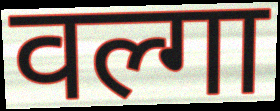
वल्गा